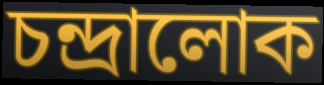
চন্দ্ৰালোক